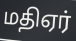
மதிஏர்